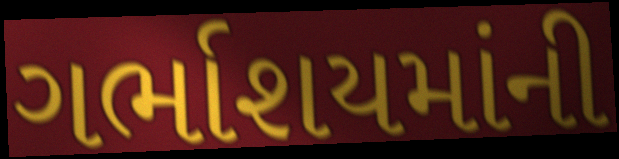
ગર્ભાશયમાંની